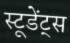
स्टूडेंट्स